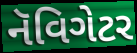
નૅવિગેટર